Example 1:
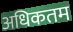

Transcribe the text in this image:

अधिकतम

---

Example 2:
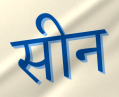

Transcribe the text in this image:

सीन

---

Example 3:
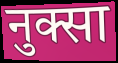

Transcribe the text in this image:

नुक्सा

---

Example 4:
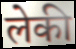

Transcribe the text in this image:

लेकी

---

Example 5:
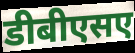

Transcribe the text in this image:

डीबीएसए